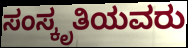
ಸಂಸ್ಕೃತಿಯವರು